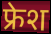
फ्रेश